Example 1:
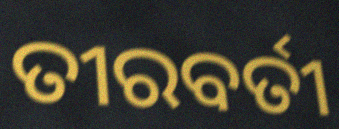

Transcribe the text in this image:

ତୀରବର୍ତୀ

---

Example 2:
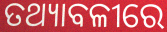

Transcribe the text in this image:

ତଥ୍ୟାବଳୀରେ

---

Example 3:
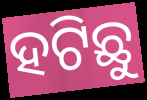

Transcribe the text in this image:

ହଟିଛୁ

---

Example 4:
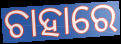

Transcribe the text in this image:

ଚାହାରେ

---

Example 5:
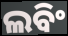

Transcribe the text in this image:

ଲବିଂ